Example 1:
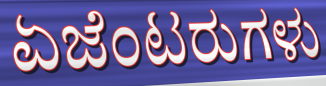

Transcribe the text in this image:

ಏಜೆಂಟರುಗಳು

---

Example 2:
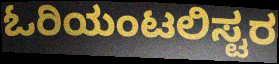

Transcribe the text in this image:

ಓರಿಯಂಟಲಿಸ್ಟರ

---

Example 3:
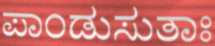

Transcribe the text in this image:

ಪಾಂಡುಸುತಾಃ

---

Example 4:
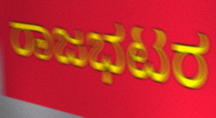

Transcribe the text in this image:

ರಾಜಭಟರ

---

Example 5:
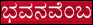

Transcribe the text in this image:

ಭವನವೆಂಬ